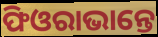
ଫିଓରାଭାନ୍ତେ